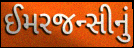
ઈમરજન્સીનું